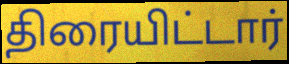
திரையிட்டார்